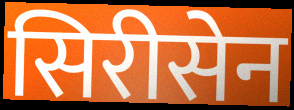
सिरीसेन